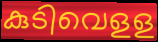
കുടിവെളള